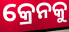
କ୍ରେନକୁ